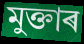
মুক্তাৰ